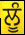
ਲੂੰ